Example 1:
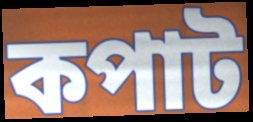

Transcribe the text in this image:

কপাট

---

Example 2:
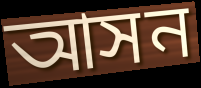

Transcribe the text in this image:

আসন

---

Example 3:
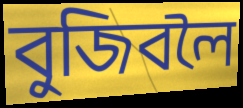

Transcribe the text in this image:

বুজিবলৈ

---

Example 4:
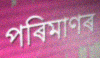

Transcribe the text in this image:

পৰিমাণৰ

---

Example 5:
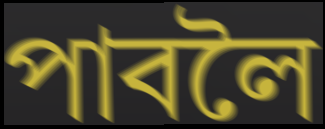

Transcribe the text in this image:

পাবলৈ